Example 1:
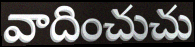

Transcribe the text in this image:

వాదించుచు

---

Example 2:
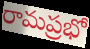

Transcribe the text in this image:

రామప్రభో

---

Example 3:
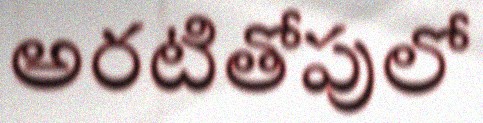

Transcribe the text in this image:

అరటితోపులో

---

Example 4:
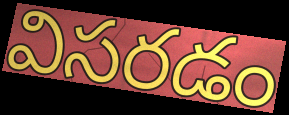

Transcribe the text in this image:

విసరడం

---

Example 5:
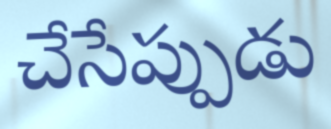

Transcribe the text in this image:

చేసేప్పుడు